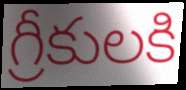
గ్రీకులకి